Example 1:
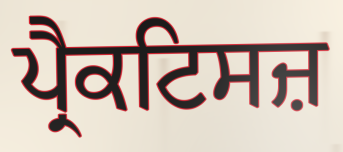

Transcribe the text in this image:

ਪ੍ਰੈਕਟਿਸਜ਼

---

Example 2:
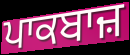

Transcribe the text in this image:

ਪਾਕਬਾਜ਼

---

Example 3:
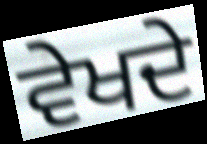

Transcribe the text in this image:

ਵੇਖਦੇ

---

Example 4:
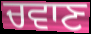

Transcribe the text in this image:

ਚਵਾਣ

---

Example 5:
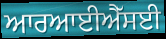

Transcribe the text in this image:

ਆਰਆਈਐੱਸਈ